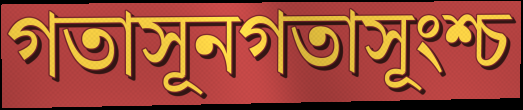
গতাসূনগতাসূংশ্চ